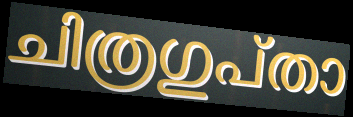
ചിത്രഗുപ്‌താ